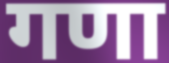
गणा